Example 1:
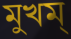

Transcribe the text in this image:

মুখম্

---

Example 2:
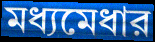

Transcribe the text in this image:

মধ্যমেধার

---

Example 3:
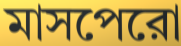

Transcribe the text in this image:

মাসপেরো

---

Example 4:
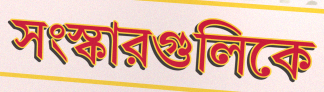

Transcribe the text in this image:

সংস্কারগুলিকে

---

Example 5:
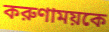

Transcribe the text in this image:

করুণাময়কে